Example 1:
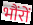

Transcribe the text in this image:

भौंरों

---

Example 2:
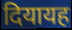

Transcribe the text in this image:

दियायह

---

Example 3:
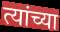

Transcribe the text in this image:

त्यांच्या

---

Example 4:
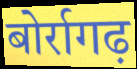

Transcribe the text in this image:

बोर्रागढ़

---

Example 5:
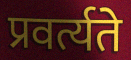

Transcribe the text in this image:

प्रवर्त्यते